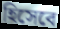
হিসেবে